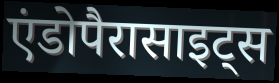
एंडोपैरासाइट्स